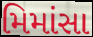
મિમાંસા